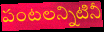
పంటలన్నిటినీ